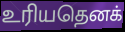
உரியதெனக்